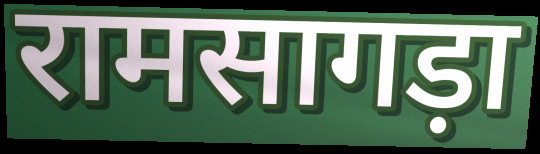
रामसागड़ा